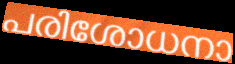
പരിശോധനാ